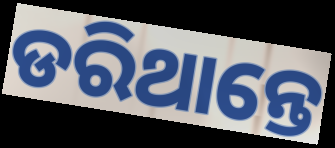
ଡରିଥାନ୍ତେ